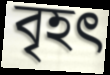
বৃহৎ